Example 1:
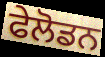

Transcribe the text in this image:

ਫੇਲੋਡਨ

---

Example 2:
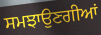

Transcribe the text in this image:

ਸਮਝਾਉਣਗੀਆਂ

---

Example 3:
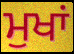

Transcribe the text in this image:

ਮੁਖਾਂ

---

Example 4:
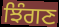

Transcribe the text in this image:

ਝਿੰਗਣ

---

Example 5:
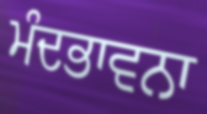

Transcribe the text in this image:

ਮੰਦਭਾਵਨਾ